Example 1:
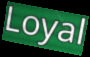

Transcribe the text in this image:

Loyal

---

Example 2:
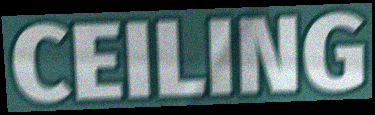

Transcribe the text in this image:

CEILING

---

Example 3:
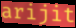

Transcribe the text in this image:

arijit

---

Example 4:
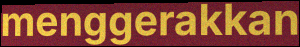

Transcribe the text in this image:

menggerakkan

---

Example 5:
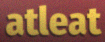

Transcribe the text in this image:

atleat